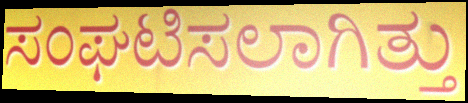
ಸಂಘಟಿಸಲಾಗಿತ್ತು